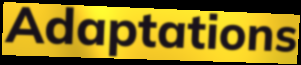
Adaptations